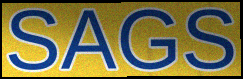
SAGS